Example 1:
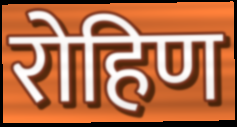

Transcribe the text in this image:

रोहिण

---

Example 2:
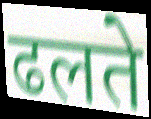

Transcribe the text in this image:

ढलते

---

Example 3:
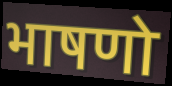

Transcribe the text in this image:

भाषणो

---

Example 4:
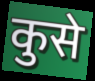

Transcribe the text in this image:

कुसे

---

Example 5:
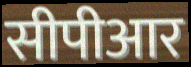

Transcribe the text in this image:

सीपीआर